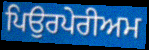
ਪਿਉਰਪੇਰੀਅਮ